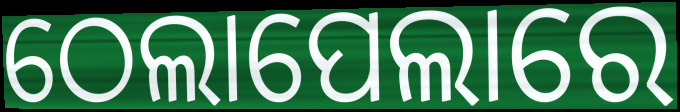
ଠେଲାପେଲାରେ